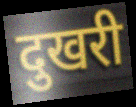
दुखरी